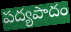
పద్యపాదం